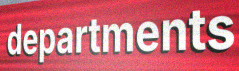
departments